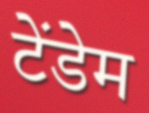
टेंडेम